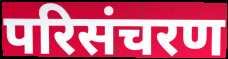
परिसंचरण